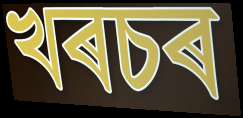
খৰচৰ